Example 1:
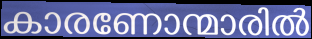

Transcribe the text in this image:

കാരണോന്മാരിൽ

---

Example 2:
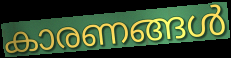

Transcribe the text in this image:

കാരണങ്ങൾ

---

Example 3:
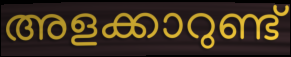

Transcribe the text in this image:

അളക്കാറുണ്ട്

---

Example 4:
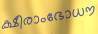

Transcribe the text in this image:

ക്ഷീരാംഭോധൗ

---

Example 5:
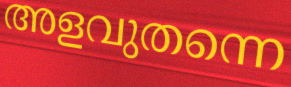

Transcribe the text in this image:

അളവുതന്നെ